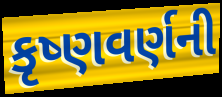
કૃષ્ણવર્ણની